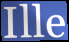
Ille